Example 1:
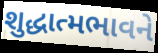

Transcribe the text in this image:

શુદ્ધાત્મભાવને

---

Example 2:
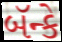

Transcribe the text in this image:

બૅન્કે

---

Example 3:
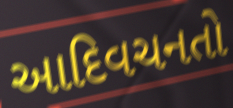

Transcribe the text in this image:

આદિવચનતો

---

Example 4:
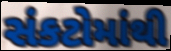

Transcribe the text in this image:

સંકટોમાંથી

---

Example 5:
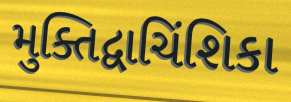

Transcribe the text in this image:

મુક્તિદ્વાચિંશિકા